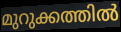
മുറുക്കത്തിൽ